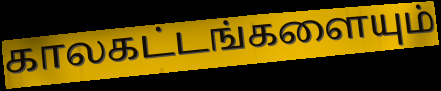
காலகட்டங்களையும்